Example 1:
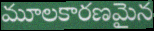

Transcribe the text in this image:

మూలకారణమైన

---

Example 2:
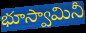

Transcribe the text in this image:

భూస్వామినీ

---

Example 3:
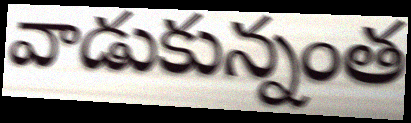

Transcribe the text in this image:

వాడుకున్నంత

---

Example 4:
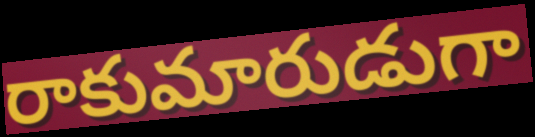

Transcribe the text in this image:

రాకుమారుడుగా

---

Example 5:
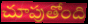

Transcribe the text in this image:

చూపుతోంది